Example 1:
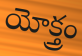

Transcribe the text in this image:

యోక్త్రం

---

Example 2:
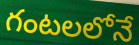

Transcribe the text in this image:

గంటలలోనే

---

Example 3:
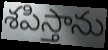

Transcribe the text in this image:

శపిస్తాను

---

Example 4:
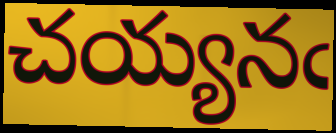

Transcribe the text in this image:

చయ్యనఁ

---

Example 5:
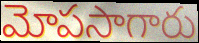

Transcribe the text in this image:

మోపసాగారు